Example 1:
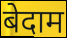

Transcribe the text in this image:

बेदाम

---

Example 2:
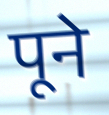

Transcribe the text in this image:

पूने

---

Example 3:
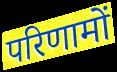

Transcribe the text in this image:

परिणामों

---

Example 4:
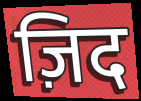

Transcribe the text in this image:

ज़िद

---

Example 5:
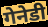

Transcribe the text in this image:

गेनेडी